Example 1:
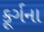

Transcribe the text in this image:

કૂર્ગના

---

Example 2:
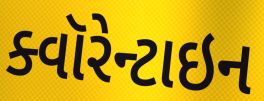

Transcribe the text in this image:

ક્વૉરેન્ટાઇન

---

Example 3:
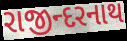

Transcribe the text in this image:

રાજીન્દરનાથ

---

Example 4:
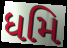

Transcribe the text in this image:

ધમિ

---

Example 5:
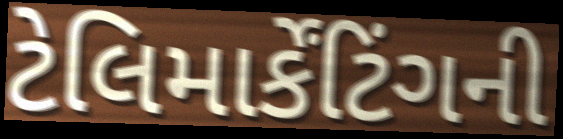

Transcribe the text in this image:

ટેલિમાર્કેંટિંગની